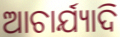
ଆଚାର୍ଯ୍ୟାଦି